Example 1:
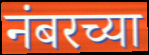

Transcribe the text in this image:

नंबरच्या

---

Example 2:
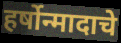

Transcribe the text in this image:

हर्षोन्मादाचे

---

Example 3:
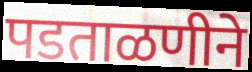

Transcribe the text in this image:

पडताळणीने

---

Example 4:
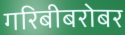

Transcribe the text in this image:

गरिबीबरोबर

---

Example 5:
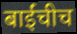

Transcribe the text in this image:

बाईंचीच